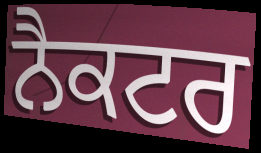
ਨੈਕਟਰ